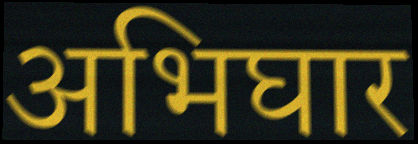
अभिघार